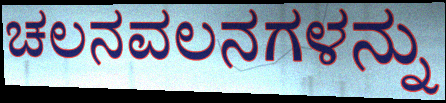
ಚಲನವಲನಗಳನ್ನು